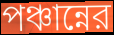
পঞ্চান্নের